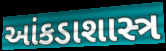
આંકડાશાસ્ત્ર